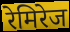
रेमिरेज